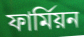
ফাৰ্মিয়ন